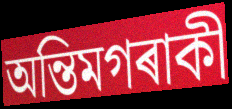
অন্তিমগৰাকী